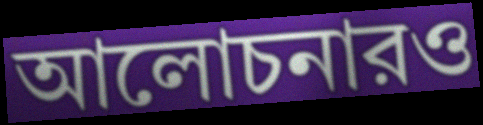
আলোচনারও